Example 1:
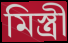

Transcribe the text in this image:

মিস্ত্ৰী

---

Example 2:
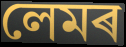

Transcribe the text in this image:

লেমৰ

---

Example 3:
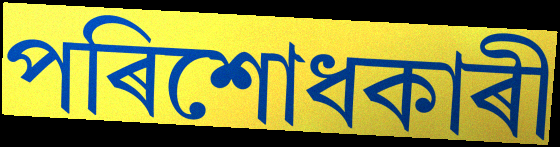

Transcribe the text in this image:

পৰিশোধকাৰী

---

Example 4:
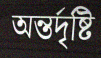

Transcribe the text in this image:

অন্তৰ্দৃষ্টি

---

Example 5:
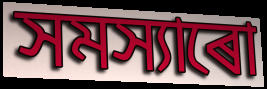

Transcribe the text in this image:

সমস্যাৰো